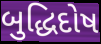
બુદ્ધિદોષ